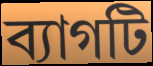
ব্যাগটি